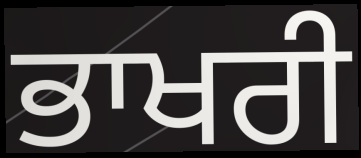
ਭਾਖਰੀ